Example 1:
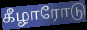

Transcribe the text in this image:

கீழாரோடு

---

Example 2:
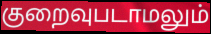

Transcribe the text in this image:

குறைவுபடாமலும்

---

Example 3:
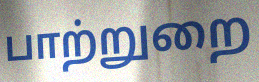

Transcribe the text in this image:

பாற்றுறை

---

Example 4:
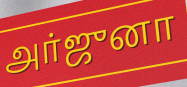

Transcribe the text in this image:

அர்ஜுனா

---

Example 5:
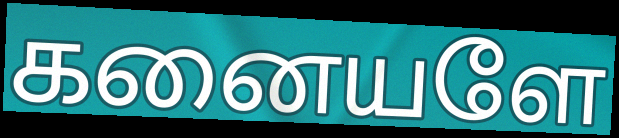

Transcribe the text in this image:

கனையளே